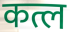
कत्‍ल